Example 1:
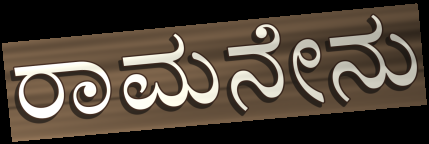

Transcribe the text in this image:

ರಾಮನೇನು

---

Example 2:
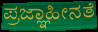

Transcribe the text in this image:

ಪ್ರಜ್ಞಾಹೀನತೆ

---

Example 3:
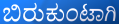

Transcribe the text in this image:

ಬಿರುಕುಂಟಾಗಿ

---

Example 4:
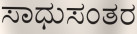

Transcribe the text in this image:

ಸಾಧುಸಂತರ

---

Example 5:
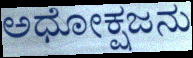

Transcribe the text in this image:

ಅಧೋಕ್ಷಜನು